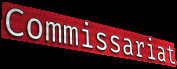
Commissariat